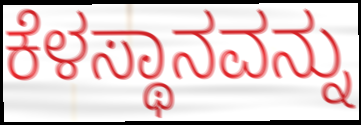
ಕೆಳಸ್ಥಾನವನ್ನು